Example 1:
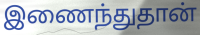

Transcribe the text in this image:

இணைந்துதான்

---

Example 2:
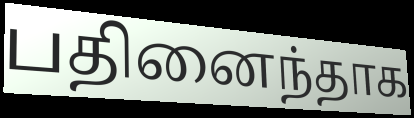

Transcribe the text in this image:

பதினைந்தாக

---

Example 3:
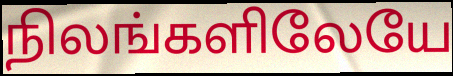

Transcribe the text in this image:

நிலங்களிலேயே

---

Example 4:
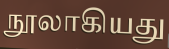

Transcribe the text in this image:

நூலாகியது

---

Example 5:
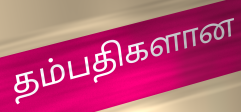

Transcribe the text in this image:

தம்பதிகளான